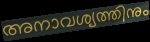
അനാവശ്യത്തിനും